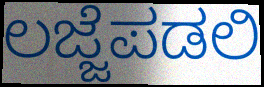
ಲಜ್ಜೆಪಡಲಿ